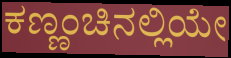
ಕಣ್ಣಂಚಿನಲ್ಲಿಯೇ